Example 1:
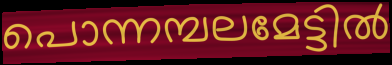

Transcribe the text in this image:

പൊന്നമ്പലമേട്ടിൽ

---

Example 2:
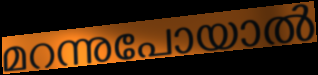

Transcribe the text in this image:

മറന്നുപോയാൽ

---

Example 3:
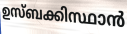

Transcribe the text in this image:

ഉസ്ബക്കിസ്ഥാൻ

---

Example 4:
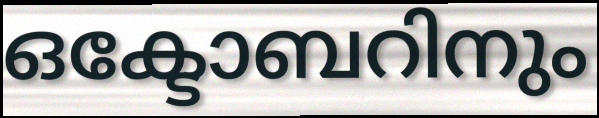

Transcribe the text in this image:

ഒക്ടോബറിനും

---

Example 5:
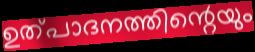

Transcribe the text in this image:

ഉത്പാദനത്തിന്റെയും